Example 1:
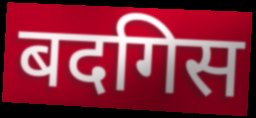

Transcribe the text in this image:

बदगिस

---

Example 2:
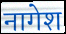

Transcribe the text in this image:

नागेश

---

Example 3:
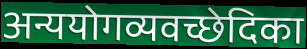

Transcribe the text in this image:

अन्ययोगव्यवच्छेदिका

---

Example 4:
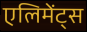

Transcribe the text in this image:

एलिमेंट्स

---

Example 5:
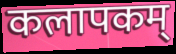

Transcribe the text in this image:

कलापकम्